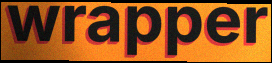
wrapper